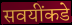
सवयींकडे